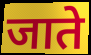
जाते